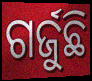
ଗର୍ଜୁଛି